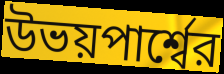
উভয়পার্শ্বের